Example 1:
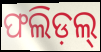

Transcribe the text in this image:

ଫଲିଡ଼ଲ୍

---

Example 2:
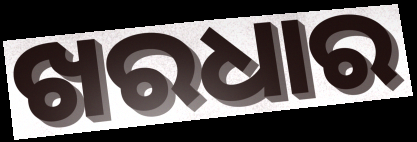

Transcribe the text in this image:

ଖରଧାର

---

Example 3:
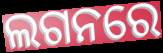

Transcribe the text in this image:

ଲଗନରେ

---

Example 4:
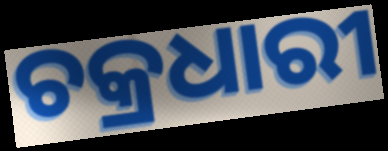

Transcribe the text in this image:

ଚକ୍ରଧାରୀ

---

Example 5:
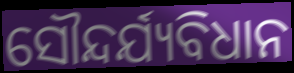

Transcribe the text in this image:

ସୌନ୍ଦର୍ଯ୍ୟବିଧାନ